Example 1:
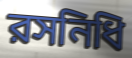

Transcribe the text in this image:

রসনিধি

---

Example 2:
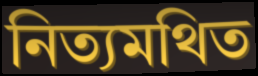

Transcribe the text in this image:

নিত্যমথিত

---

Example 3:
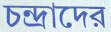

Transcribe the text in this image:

চন্দ্রাদের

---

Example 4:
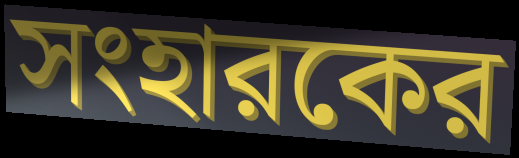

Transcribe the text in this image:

সংহারকের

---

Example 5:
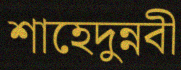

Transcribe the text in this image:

শাহেদুন্নবী